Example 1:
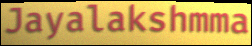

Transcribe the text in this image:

Jayalakshmma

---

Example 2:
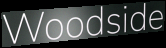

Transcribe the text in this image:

Woodside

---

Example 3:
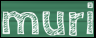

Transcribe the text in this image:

muri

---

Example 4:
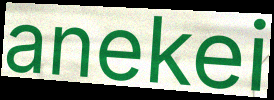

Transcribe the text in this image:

anekei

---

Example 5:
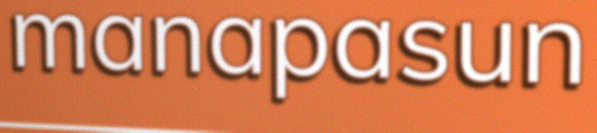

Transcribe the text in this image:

manapasun